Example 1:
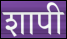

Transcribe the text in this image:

शापी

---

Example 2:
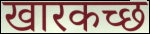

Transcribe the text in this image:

खारकच्छ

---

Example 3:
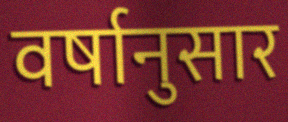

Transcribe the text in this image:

वर्षानुसार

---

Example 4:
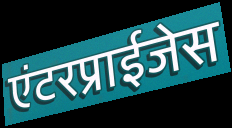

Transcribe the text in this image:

एंटरप्राईजेस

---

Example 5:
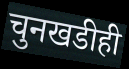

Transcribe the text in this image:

चुनखडीही